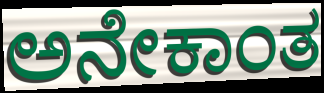
ಅನೇಕಾಂತ